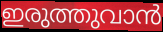
ഇരുത്തുവാൻ